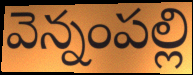
వెన్నంపల్లి